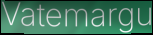
Vatemargu